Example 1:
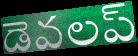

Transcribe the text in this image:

డెవలప్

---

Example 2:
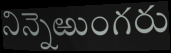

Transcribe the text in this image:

నిన్నెఱుంగరు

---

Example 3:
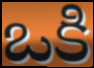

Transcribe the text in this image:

ఒకి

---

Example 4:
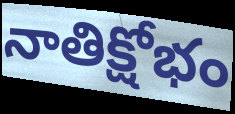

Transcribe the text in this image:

నాతిక్షోభం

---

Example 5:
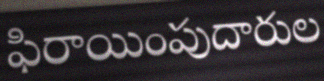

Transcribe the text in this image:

ఫిరాయింపుదారుల